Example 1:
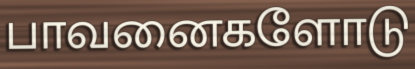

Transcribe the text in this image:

பாவனைகளோடு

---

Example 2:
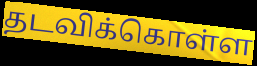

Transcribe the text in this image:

தடவிக்கொள்ள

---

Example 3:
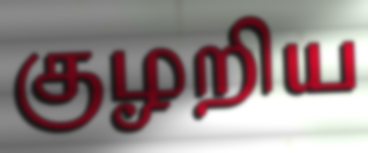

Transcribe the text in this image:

குழறிய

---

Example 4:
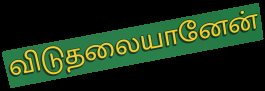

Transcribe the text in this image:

விடுதலையானேன்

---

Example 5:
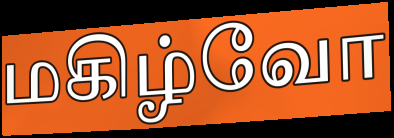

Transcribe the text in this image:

மகிழ்வோ